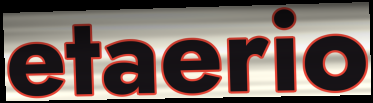
etaerio